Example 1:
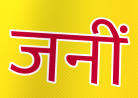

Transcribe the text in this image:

जनीं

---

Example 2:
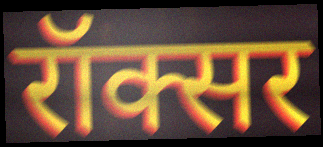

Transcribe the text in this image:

रॉक्सर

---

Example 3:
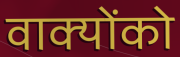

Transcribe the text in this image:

वाक्योंको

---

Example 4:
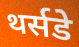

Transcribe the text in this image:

थर्सडे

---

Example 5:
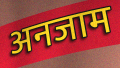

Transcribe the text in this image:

अनजाम